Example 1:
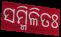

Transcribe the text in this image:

ସମ୍ମିଳିତଃ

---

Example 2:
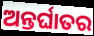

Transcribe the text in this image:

ଅନ୍ତର୍ଘାତର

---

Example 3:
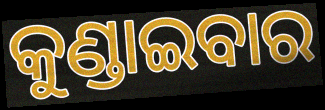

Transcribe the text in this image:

କୁଣ୍ଡାଇବାର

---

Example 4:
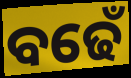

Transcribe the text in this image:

ବଢେଁ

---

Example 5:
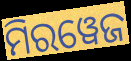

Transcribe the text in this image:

ମିରୱେଜ